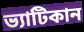
ভ্যাটিকান